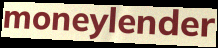
moneylender